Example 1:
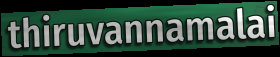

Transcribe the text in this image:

thiruvannamalai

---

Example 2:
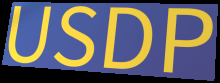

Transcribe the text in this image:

USDP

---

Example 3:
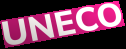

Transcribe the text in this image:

UNECO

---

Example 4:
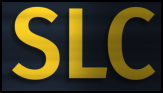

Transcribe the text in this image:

SLC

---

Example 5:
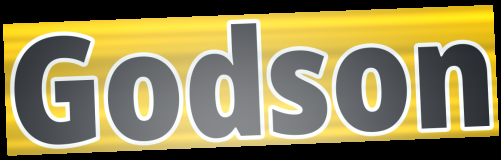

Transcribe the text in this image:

Godson